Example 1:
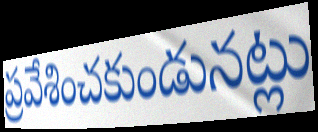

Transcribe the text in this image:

ప్రవేశించకుండునట్లు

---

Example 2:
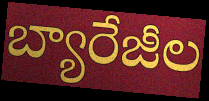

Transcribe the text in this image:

బ్యారేజీల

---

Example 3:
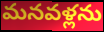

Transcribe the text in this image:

మనవళ్లను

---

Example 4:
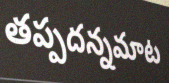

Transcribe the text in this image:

తప్పదన్నమాట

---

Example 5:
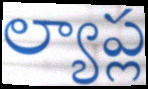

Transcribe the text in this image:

ల్యాప్ల